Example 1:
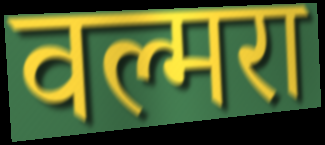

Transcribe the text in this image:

वल्मरा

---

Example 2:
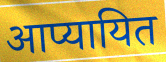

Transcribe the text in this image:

आप्यायित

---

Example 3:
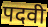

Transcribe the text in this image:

पदवी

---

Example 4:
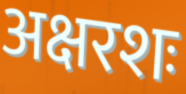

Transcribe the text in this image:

अक्षरशः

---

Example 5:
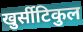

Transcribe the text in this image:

खुर्सीटिकुल